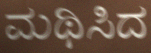
ಮಥಿಸಿದ